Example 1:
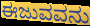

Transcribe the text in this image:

ಈಜುವವನು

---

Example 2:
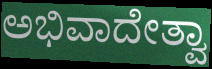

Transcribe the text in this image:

ಅಭಿವಾದೇತ್ವಾ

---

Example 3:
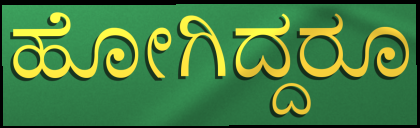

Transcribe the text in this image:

ಹೋಗಿದ್ದರೂ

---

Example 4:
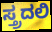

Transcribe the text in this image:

ಸ್ತ್ರದಲಿ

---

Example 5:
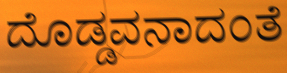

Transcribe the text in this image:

ದೊಡ್ಡವನಾದಂತೆ